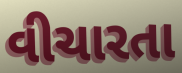
વીચારતા